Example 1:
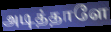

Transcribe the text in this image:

அடித்தாளே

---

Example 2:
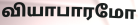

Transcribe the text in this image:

வியாபாரமோ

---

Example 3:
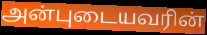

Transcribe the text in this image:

அன்புடையவரின்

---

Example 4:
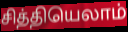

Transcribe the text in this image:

சித்தியெலாம்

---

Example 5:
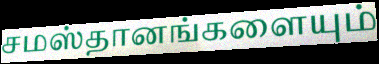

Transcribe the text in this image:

சமஸ்தானங்களையும்